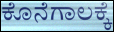
ಕೊನೆಗಾಲಕ್ಕೆ